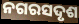
ନଗରସଦୃଶ